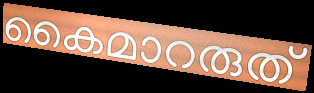
കൈമാറരുത്